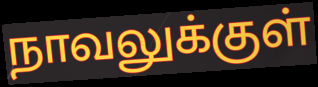
நாவலுக்குள்